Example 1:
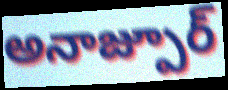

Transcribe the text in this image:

అనాజ్పూర్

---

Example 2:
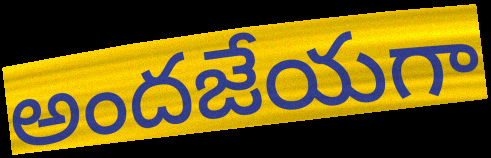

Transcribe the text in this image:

అందజేయగా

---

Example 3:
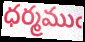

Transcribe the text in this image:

ధర్మముఁ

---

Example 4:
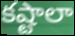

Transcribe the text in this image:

కష్టాలా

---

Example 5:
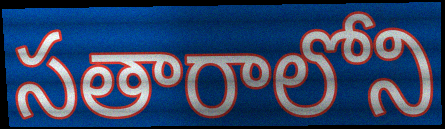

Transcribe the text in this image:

సతారాలోని